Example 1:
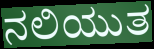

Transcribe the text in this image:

ನಲಿಯುತ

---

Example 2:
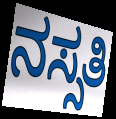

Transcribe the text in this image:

ನಸ್ಸತಿ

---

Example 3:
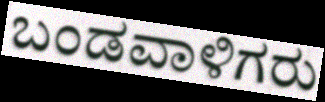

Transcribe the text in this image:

ಬಂಡವಾಳಿಗರು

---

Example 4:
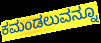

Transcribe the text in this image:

ಕಮಂಡಲುವನ್ನೂ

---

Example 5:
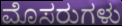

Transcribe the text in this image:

ಮೊಸರುಗಳು